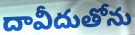
దావీదుతోను